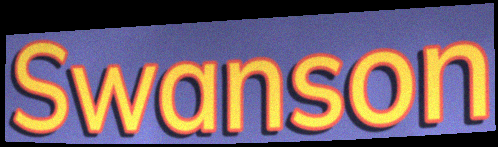
Swanson